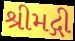
શ્રીમદ્ગી